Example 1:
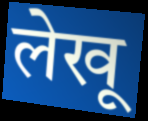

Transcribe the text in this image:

लेखू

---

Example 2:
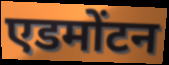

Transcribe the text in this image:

एडमोंटन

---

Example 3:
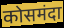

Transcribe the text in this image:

कोसमंदा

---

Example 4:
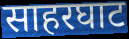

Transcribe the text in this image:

साहरघाट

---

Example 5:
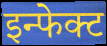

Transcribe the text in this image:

इन्फेक्ट